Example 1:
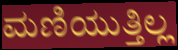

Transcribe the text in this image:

ಮಣಿಯುತ್ತಿಲ್ಲ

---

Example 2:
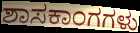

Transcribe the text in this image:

ಶಾಸಕಾಂಗಗಳು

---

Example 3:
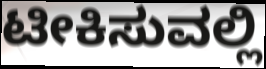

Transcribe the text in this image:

ಟೀಕಿಸುವಲ್ಲಿ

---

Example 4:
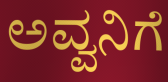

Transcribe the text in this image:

ಅವ್ವನಿಗೆ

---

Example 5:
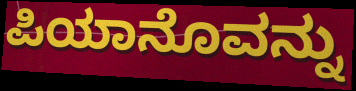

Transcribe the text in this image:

ಪಿಯಾನೊವನ್ನು